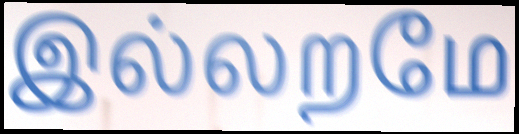
இல்லறமே